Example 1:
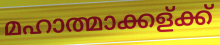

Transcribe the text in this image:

മഹാത്മാക്കള്ക്ക്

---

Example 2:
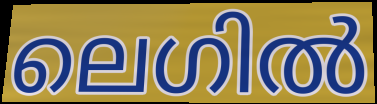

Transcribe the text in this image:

ലെഗിൽ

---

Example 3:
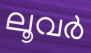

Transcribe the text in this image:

ലൂവർ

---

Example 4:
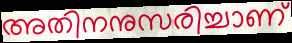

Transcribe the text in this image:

അതിനനുസരിച്ചാണ്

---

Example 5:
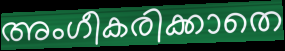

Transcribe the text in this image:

അംഗീകരിക്കാതെ